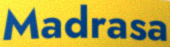
Madrasa